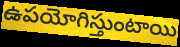
ఉపయోగిస్తుంటాయి